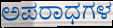
ಅಪರಾಧಗಳ